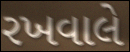
રખવાલે